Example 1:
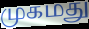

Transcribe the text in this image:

முகமது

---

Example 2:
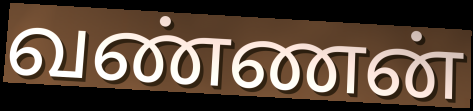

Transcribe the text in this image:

வண்ணன்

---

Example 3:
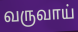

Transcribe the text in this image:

வருவாய்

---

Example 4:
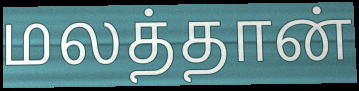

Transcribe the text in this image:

மலத்தான்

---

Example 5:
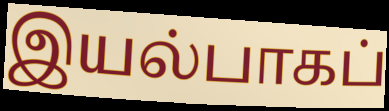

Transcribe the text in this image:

இயல்பாகப்